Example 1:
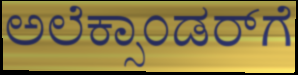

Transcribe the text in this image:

ಅಲೆಕ್ಸಾಂಡರ್‌ಗೆ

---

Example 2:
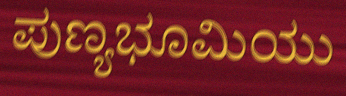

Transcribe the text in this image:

ಪುಣ್ಯಭೂಮಿಯು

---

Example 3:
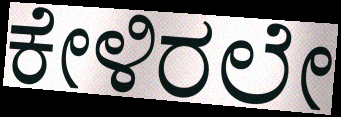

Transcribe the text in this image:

ಕೇಳಿರಲೇ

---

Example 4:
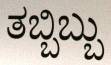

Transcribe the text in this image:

ತಬ್ಬಿಬ್ಬು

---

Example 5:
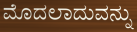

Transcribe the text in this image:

ಮೊದಲಾದುವನ್ನು